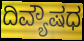
ದಿವ್ಯೌಷಧ